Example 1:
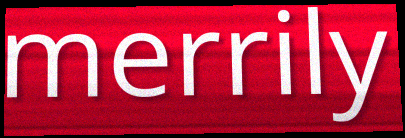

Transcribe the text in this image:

merrily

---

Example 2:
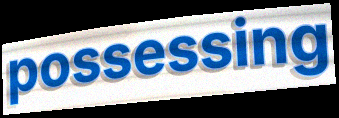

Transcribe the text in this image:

possessing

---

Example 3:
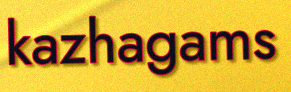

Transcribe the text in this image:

kazhagams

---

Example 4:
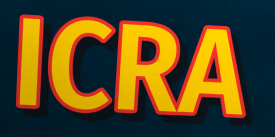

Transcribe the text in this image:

ICRA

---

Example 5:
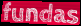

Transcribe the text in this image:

fundas